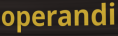
operandi